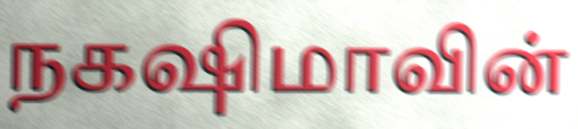
நகஷிமாவின்